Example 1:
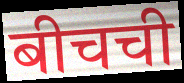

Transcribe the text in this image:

बीचची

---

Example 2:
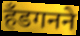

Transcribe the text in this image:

हँडगनने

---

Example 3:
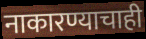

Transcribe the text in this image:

नाकारण्याचाही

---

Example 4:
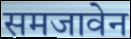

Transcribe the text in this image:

समजावेन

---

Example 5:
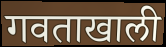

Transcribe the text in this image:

गवताखाली